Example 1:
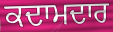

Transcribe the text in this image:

ਕਦਾਮਦਾਰ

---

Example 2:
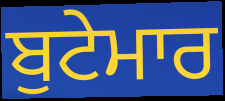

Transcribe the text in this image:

ਬੁਟੇਮਾਰ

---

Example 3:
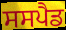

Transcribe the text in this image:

ਸਸਪੈਡ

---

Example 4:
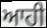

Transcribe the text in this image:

ਆਹੀ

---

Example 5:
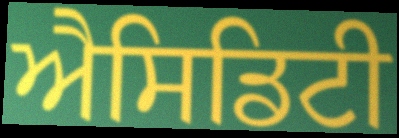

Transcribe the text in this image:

ਐਸਿਡਿਟੀ